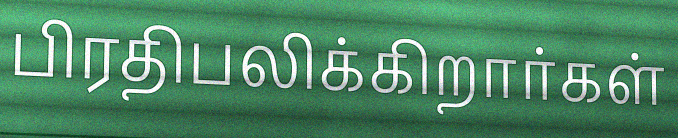
பிரதிபலிக்கிறார்கள்